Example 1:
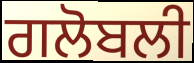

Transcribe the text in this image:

ਗਲੋਬਲੀ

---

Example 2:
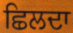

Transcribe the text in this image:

ਛਿਲਦਾ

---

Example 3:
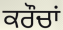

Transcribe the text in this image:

ਕਰੌਚਾਂ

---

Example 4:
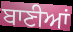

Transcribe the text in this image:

ਬਾਣੀਆਂ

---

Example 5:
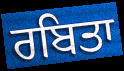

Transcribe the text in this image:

ਰਬਿਤਾ